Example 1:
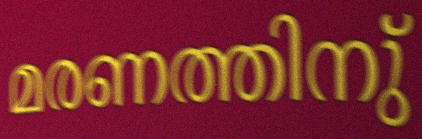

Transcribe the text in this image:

മരണത്തിനു്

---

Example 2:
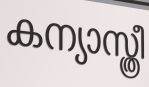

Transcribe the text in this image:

കന്യാസ്ത്രീ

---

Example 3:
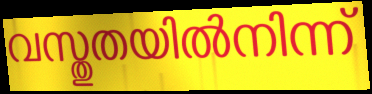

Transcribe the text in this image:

വസ്തുതയിൽനിന്ന്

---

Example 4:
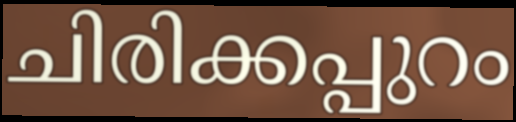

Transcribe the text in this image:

ചിരിക്കപ്പുറം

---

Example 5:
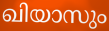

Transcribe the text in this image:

ഖിയാസും